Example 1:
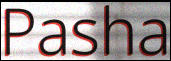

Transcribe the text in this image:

Pasha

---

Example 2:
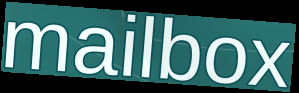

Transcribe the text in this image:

mailbox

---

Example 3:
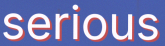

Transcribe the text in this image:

serious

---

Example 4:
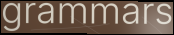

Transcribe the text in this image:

grammars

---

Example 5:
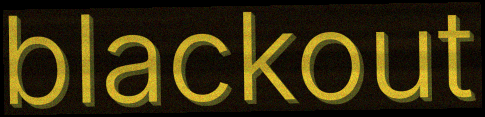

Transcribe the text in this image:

blackout